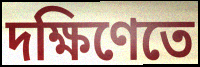
দক্ষিণেতে